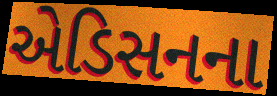
એડિસનના